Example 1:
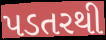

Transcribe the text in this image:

પડતરથી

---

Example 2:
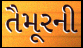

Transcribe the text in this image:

તૈમૂરની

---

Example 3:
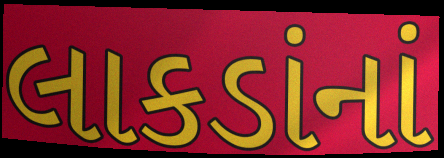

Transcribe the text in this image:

લાકડાંનાં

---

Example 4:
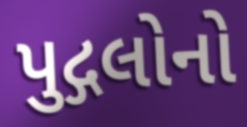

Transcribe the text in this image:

પુદ્ગલોનો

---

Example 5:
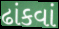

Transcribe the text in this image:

ઢાંકવાં